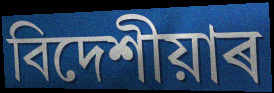
বিদেশীয়াৰ